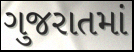
ગુજરાતમાં